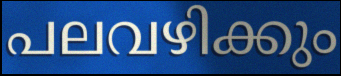
പലവഴിക്കും